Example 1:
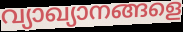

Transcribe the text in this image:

വ്യാഖ്യാനങ്ങളെ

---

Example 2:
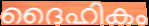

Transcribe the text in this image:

ദൈഹികം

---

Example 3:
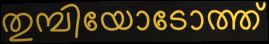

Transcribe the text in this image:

തുമ്പിയോടോത്ത്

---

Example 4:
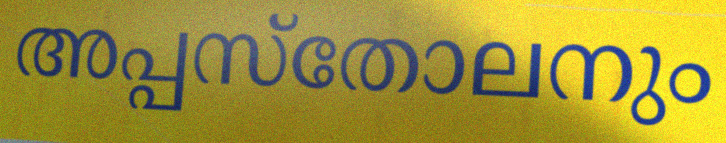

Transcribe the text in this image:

അപ്പസ്തോലനും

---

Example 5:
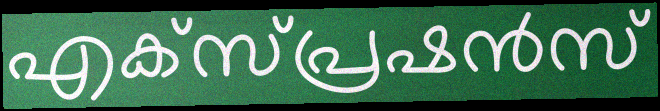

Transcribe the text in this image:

എക്സ്പ്രഷൻസ്